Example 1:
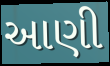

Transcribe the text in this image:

આણી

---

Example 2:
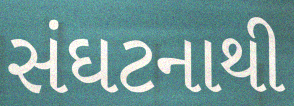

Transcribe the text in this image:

સંઘટનાથી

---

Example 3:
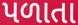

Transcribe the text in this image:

પળાતા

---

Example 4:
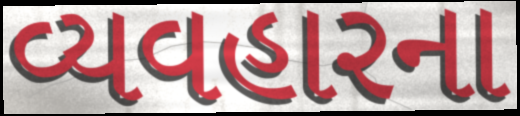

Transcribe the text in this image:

વ્યવહારના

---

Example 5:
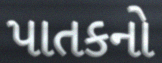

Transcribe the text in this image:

પાતકનો